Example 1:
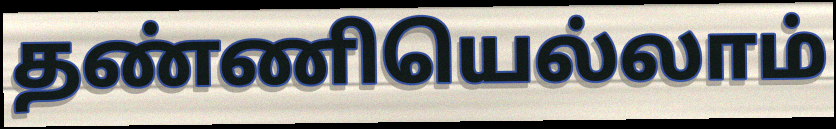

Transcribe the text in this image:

தண்ணியெல்லாம்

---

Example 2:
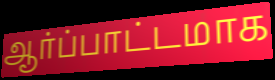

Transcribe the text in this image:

ஆர்ப்பாட்டமாக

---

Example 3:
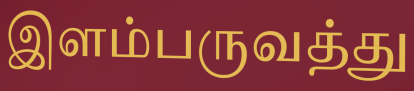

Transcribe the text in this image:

இளம்பருவத்து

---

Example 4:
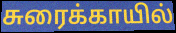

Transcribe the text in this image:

சுரைக்காயில்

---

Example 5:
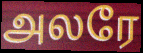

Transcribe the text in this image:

அலரே